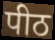
पीठ